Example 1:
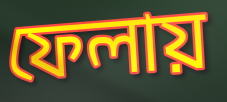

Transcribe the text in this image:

ফেলায়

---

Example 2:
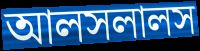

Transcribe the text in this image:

আলসলালস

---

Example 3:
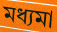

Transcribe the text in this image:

মধ্যমা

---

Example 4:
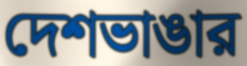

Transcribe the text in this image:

দেশভাঙার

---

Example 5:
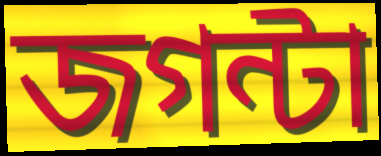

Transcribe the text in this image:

জগন্টা